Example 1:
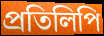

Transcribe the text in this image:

প্রতিলিপি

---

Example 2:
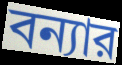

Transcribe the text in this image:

বন্যার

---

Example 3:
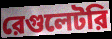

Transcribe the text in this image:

রেগুলেটরি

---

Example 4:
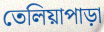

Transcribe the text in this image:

তেলিয়াপাড়া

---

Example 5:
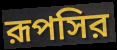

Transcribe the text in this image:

রূপসির